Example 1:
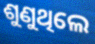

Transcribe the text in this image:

ଶୁଣୁଥିଲେ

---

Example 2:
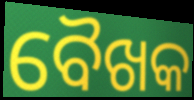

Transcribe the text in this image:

ବୈଖକ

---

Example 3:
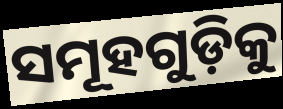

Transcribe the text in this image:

ସମୂହଗୁଡ଼ିକୁ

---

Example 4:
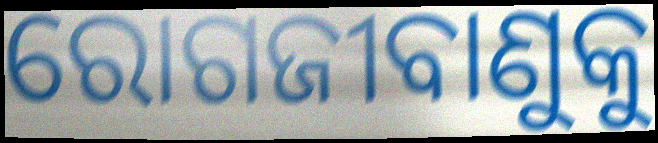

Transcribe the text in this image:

ରୋଗଜୀବାଣୁକୁ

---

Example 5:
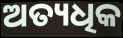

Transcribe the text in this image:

ଅତ୍ୟଧିକ